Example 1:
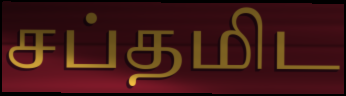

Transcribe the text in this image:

சப்தமிட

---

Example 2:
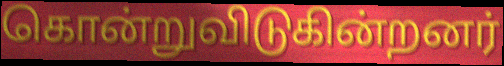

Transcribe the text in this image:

கொன்றுவிடுகின்றனர்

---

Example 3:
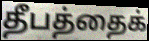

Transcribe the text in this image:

தீபத்தைக்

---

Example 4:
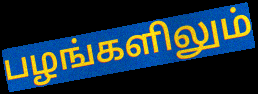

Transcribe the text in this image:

பழங்களிலும்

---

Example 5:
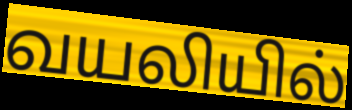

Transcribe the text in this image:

வயலியில்